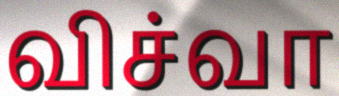
விச்வா